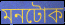
মনটোক